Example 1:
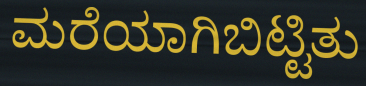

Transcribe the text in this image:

ಮರೆಯಾಗಿಬಿಟ್ಟಿತು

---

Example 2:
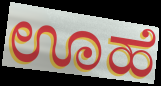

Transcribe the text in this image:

ಊಹೆ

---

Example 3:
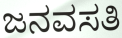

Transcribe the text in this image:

ಜನವಸತಿ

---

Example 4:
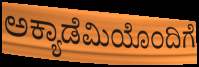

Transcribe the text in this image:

ಅಕ್ಯಾಡೆಮಿಯೊಂದಿಗೆ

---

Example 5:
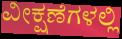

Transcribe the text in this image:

ವೀಕ್ಷಣೆಗಳಲ್ಲಿ